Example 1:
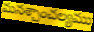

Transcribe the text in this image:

మనశ్చాంచల్యము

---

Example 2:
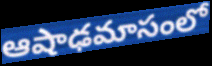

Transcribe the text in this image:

ఆషాఢమాసంలో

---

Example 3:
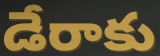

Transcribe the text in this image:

డేరాకు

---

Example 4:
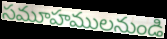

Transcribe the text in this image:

సమూహములనుండి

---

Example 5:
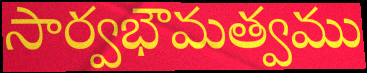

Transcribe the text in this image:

సార్వభౌమత్వము